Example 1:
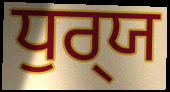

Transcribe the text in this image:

ਧੁਰ੍‍ਯ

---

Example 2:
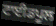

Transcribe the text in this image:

ਟਾਈਡਪੂਲ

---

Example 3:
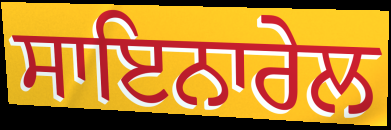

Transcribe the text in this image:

ਸਾਇਨਾਰੇਲ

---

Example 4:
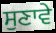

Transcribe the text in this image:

ਸੁਣਾਵੇ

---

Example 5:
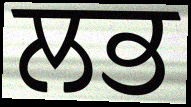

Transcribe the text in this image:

ਲਭ